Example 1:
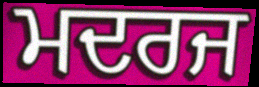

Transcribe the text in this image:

ਮਦਰਜ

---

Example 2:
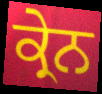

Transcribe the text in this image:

ਕ੍ਰੇਨ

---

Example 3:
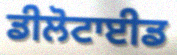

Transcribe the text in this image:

ਡੀਲੋਟਾਈਡ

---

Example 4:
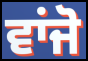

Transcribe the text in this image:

ਵਾਂਜੋ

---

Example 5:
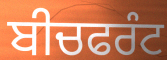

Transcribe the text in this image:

ਬੀਚਫਰੰਟ